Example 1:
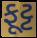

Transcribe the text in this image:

ફૂટ્ટ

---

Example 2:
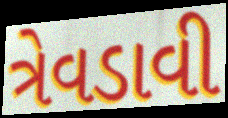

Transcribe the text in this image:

ત્રેવડાવી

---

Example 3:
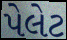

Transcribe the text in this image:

પેલેટ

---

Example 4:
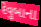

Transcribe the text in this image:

દેવુબાના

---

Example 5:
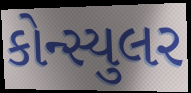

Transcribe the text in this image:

કોન્સ્યુલર